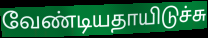
வேண்டியதாயிடுச்சு